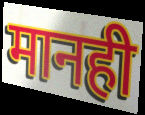
मानही